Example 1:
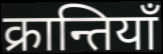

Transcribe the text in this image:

क्रान्तियाँ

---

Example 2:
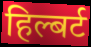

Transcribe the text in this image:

हिल्बर्ट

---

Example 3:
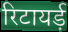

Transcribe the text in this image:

रिटायर्ड़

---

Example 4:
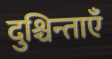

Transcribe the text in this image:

दुश्चिन्ताएँ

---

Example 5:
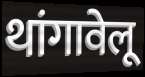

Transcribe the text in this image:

थांगावेलू